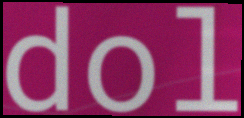
dol